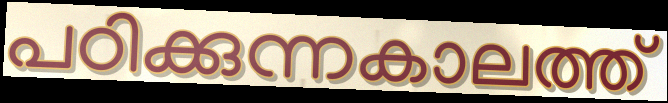
പഠിക്കുന്നകാലത്ത്